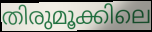
തിരുമൂക്കിലെ